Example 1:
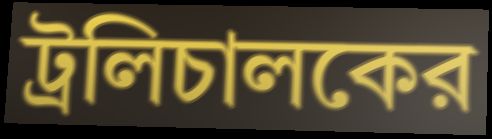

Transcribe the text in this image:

ট্রলিচালকের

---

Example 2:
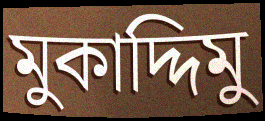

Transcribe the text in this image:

মুকাদ্দিমু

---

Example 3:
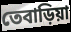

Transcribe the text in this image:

তেবাড়িয়া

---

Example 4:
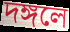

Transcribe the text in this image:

দঙ্গলে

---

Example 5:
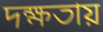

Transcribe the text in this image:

দক্ষতায়